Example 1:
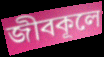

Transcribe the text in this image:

জীবকূলে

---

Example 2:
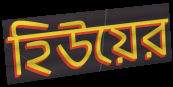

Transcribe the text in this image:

হিউয়ের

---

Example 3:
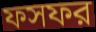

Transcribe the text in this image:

ফসফর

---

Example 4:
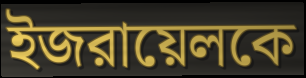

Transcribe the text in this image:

ইজরায়েলকে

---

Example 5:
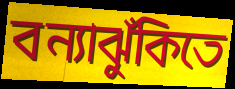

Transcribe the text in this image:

বন্যাঝুঁকিতে